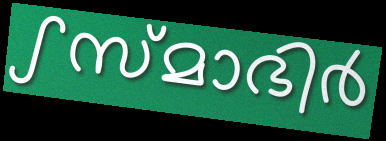
ഽസ്മാഭിർ